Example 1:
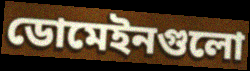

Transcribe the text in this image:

ডোমেইনগুলো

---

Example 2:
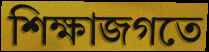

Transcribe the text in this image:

শিক্ষাজগতে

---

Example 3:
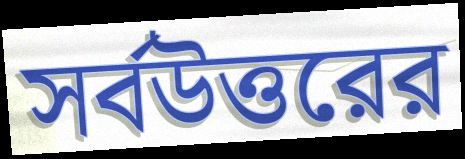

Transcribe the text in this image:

সর্বউত্তরের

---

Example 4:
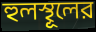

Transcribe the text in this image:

হুলস্থূলের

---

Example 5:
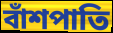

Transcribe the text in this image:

বাঁশপাতি